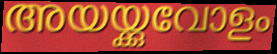
അയയ്ക്കുവോളം